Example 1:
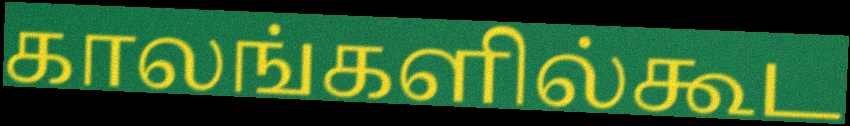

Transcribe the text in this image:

காலங்களில்கூட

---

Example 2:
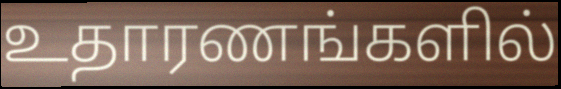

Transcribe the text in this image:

உதாரணங்களில்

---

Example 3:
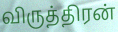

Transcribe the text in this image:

விருத்திரன்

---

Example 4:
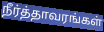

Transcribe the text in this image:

நீர்த்தாவரங்கள்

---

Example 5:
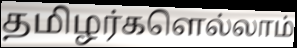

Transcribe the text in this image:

தமிழர்களெல்லாம்